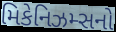
મિકેનિઝમ્સનો